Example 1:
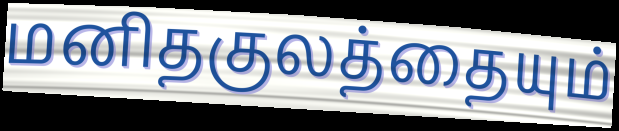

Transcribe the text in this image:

மனிதகுலத்தையும்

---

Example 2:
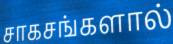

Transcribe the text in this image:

சாகசங்களால்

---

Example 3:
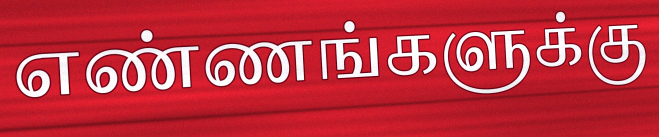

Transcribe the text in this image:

எண்ணங்களுக்கு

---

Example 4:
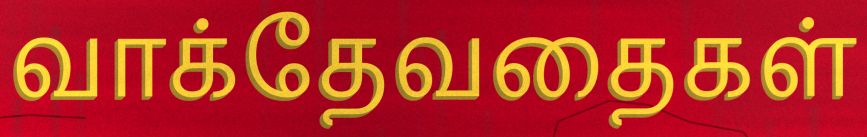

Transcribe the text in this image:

வாக்தேவதைகள்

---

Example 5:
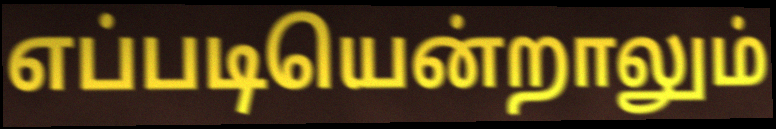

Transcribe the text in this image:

எப்படியென்றாலும்